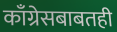
काँग्रेसबाबतही